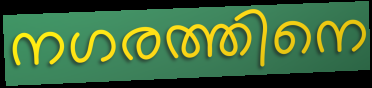
നഗരത്തിനെ